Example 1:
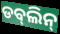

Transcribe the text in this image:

ଡବ୍‌ଲିନ୍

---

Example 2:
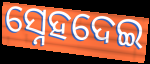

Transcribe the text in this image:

ସ୍ନେହଦେଇ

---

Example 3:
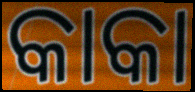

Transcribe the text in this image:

କାକା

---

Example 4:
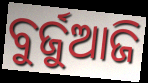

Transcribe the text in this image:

ବୁର୍ଜୁଆଜି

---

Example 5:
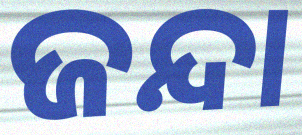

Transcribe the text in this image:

ଜନ୍ଦା